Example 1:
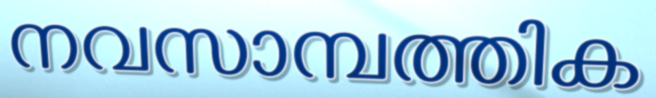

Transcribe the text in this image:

നവസാമ്പത്തിക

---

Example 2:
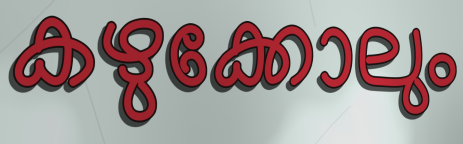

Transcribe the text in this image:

കഴുക്കോലും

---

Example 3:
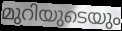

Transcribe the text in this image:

മുറിയുടെയും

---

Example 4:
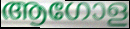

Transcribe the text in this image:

ആഗോള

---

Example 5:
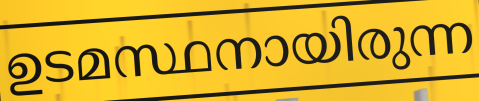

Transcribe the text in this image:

ഉടമസ്ഥനായിരുന്ന